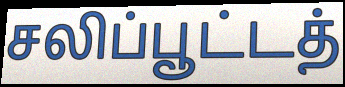
சலிப்பூட்டத்